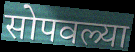
सोपवल्या